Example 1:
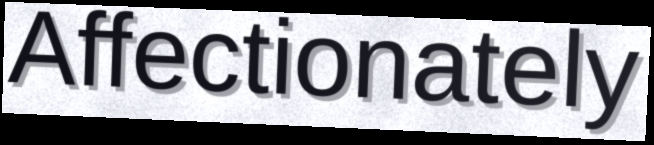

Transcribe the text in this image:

Affectionately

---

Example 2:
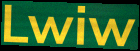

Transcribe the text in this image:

Lwiw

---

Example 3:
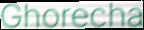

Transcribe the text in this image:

Ghorecha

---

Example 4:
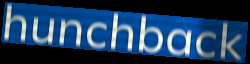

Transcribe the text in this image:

hunchback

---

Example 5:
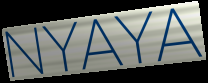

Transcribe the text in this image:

NYAYA